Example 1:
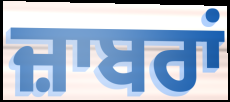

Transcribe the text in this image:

ਜ਼ਾਬਰਾਂ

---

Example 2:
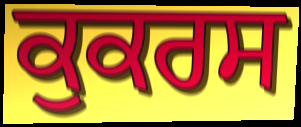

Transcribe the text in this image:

ਕੁਕਰਸ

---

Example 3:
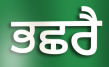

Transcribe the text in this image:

ਭਛਰੈ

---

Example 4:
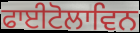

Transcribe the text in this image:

ਫਾਈਟੋਲਾਵਿਨ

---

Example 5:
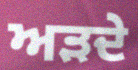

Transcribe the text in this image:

ਅੜਦੇ